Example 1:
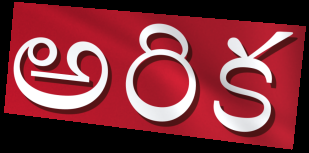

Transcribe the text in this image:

అరిక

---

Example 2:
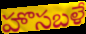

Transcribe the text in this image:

హొసబళే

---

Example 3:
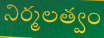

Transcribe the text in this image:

నిర్మలత్వం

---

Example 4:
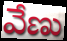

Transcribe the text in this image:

వేణు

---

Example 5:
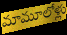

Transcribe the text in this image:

మామూలోళ్లు